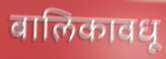
बालिकावधू